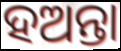
ହଅନ୍ତା